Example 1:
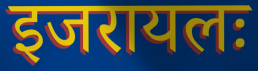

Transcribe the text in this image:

इजरायलः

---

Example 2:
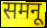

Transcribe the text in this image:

समनू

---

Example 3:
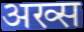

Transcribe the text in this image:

अख्स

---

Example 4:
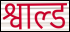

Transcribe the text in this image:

श्वाल्ड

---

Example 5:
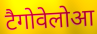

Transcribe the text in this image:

टैगोवेलोआ